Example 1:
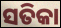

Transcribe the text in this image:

ସତିକା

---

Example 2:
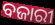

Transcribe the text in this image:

ବଜାରୀ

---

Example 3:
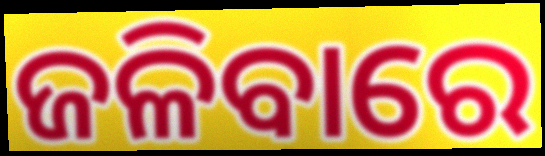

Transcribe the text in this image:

ଜଳିବାରେ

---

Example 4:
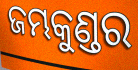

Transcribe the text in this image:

ଜମ୍ଭକୁଣ୍ଡର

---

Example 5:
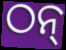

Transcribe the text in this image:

ଠନ୍